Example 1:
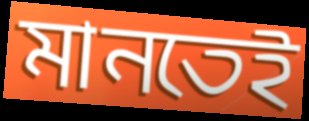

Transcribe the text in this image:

মানতেই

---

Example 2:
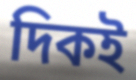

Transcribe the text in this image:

দিকই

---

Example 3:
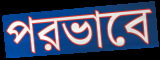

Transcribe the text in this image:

পরভাবে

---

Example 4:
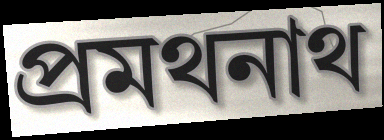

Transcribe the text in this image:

প্রমথনাথ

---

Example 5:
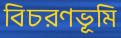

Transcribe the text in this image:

বিচরণভূমি